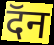
दॅन